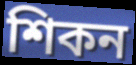
শিকন